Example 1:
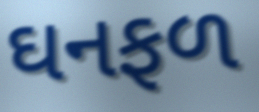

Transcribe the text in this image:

ઘનફળ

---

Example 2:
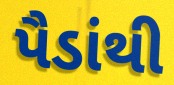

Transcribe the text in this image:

પૈડાંથી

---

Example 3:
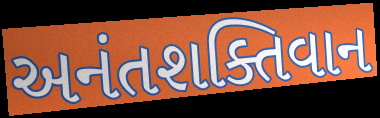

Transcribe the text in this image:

અનંતશક્તિવાન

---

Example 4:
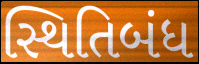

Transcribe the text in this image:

સ્થિતિબંધ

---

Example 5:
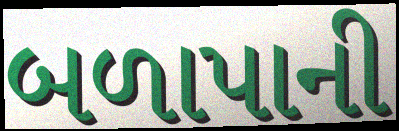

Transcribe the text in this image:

બળાપાની